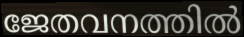
ജേതവനത്തിൽ